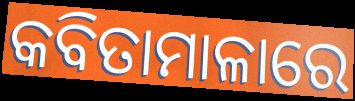
କବିତାମାଳାରେ